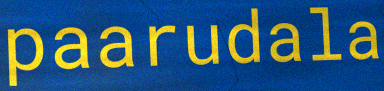
paarudala